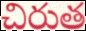
చిరుత